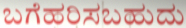
ಬಗೆಹರಿಸಬಹುದು